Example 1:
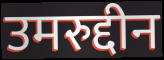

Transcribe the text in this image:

उमरुद्दीन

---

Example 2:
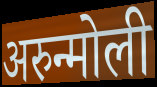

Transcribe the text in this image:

अरुन्मोली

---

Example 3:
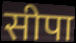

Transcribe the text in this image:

सीपा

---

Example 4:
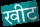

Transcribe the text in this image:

खीट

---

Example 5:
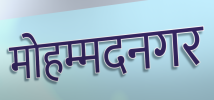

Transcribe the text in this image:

मोहम्मदनगर